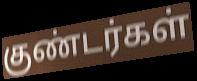
குண்டர்கள்